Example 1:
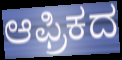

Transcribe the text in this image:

ಆಫ್ರಿಕದ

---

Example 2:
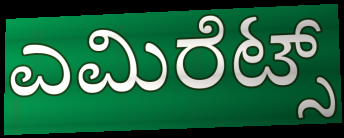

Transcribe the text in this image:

ಎಮಿರೆಟ್ಸ್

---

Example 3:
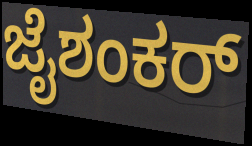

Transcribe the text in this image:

ಜೈಶಂಕರ್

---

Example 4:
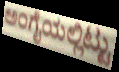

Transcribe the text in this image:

ಅಂಗೈಯಲ್ಲಿಟ್ಟು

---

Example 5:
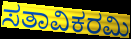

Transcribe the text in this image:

ಸತಾವಿಕರಮಿ